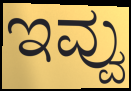
ಇವ್ವು